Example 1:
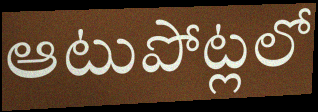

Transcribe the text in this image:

ఆటుపోట్లలో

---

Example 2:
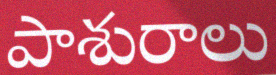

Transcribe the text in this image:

పాశురాలు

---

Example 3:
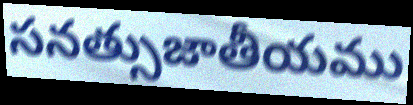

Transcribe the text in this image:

సనత్సుజాతీయము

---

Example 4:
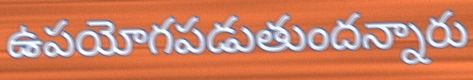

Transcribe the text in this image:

ఉపయోగపడుతుందన్నారు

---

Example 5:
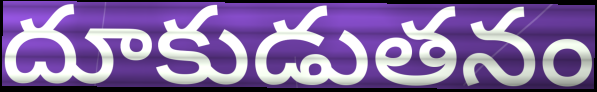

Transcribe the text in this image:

దూకుడుతనం